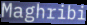
Maghribi